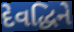
દેવદ્ધિને